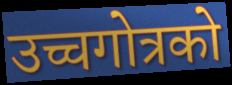
उच्चगोत्रको